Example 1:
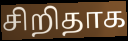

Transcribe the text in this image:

சிறிதாக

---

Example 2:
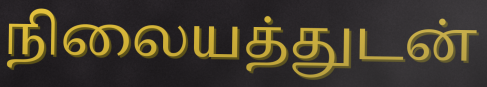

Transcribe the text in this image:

நிலையத்துடன்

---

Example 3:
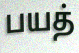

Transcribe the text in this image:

பயத்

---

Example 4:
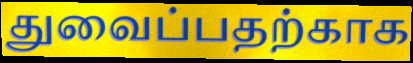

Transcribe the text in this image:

துவைப்பதற்காக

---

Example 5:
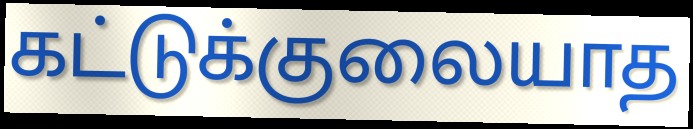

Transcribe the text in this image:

கட்டுக்குலையாத